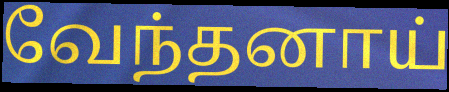
வேந்தனாய்